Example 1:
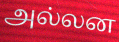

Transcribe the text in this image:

அல்லன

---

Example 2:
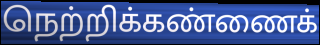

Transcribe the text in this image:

நெற்றிக்கண்ணைக்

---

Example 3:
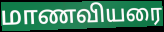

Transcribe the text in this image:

மாணவியரை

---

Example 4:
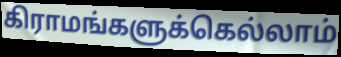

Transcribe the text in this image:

கிராமங்களுக்கெல்லாம்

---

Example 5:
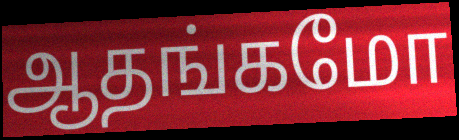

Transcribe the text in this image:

ஆதங்கமோ